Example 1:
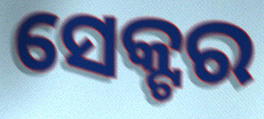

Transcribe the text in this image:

ସେକ୍ଟର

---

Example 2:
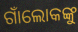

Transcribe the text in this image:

ଗାଁଲୋକଙ୍କୁ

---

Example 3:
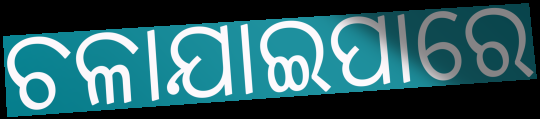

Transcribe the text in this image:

ଚଳାଯାଇପାରେ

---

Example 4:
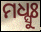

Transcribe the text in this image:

ମଧ୍ସୁଃ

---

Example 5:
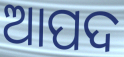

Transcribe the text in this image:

ଆପଦ